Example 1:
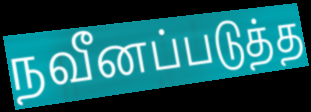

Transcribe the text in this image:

நவீனப்படுத்த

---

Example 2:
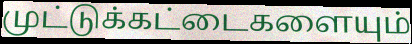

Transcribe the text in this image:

முட்டுக்கட்டைகளையும்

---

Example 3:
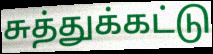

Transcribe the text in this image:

சுத்துக்கட்டு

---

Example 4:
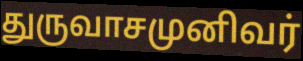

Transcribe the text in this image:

துருவாசமுனிவர்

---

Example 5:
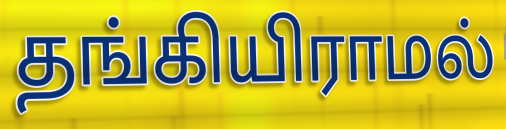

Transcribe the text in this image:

தங்கியிராமல்